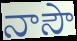
నాసౌ